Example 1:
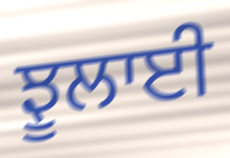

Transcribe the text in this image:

ਝੂਲਾਈ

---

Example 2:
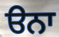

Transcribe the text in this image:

ੳਨਾ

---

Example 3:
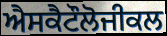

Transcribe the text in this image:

ਐਸਕੈਟੌਲੋਜੀਕਲ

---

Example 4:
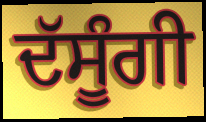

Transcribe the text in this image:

ਦੱਸੂੰਗੀ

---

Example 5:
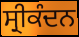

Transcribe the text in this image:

ਸ੍ਰੀਕੰਦਨ